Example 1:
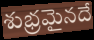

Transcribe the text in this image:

శుభ్రమైనదే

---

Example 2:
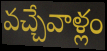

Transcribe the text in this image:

వచ్చేవాళ్లం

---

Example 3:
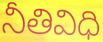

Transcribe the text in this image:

నీతివిధి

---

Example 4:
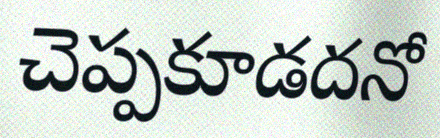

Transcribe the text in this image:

చెప్పకూడదనో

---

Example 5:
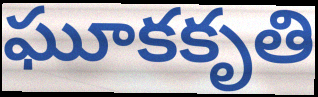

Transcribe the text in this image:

ఘూకకృతి